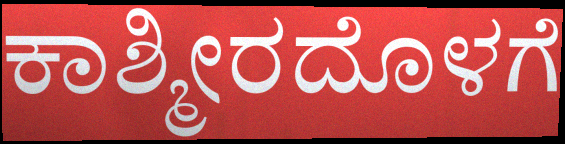
ಕಾಶ್ಮೀರದೊಳಗೆ